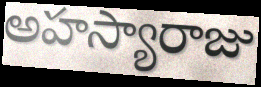
అహస్యారాజు